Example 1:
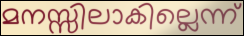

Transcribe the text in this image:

മനസ്സിലാകില്ലെന്ന്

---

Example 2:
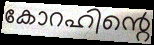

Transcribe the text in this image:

കോറഹിന്റെ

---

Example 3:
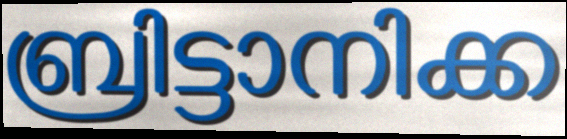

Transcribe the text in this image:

ബ്രിട്ടാനിക്ക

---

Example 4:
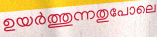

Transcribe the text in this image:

ഉയർത്തുന്നതുപോലെ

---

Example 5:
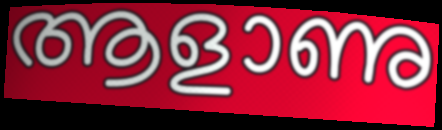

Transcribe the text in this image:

ആളാണു